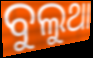
ବୁଲୁଥା